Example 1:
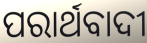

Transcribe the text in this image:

ପରାର୍ଥବାଦୀ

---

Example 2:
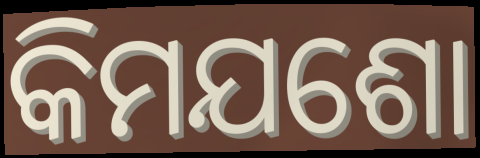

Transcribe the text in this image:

କିମଯଶୋ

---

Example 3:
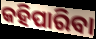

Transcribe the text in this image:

କହିପାରିବା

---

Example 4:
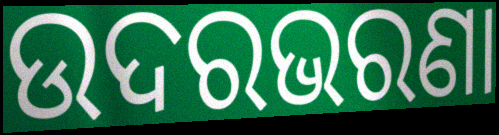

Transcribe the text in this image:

ଉଦରଭରଣା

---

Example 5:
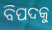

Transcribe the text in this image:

ବିପଦକୁ